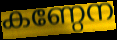
കണ്ഠേന